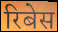
रिबेस